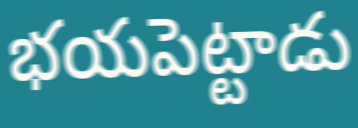
భయపెట్టాడు